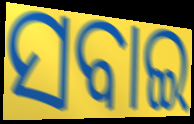
ସବାଇ